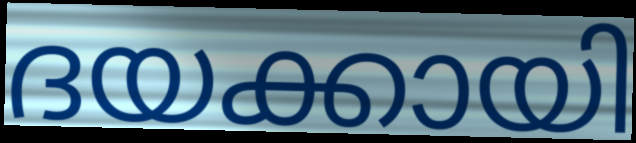
ദയക്കായി